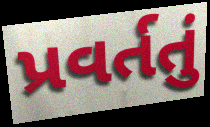
પ્રવર્તતું